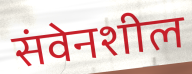
संवेनशील